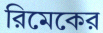
রিমেকের